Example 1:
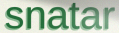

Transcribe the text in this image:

snatar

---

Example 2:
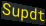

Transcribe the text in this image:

Supdt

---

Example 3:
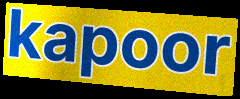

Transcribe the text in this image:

kapoor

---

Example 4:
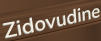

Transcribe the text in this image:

Zidovudine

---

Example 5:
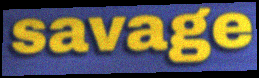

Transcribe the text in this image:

savage